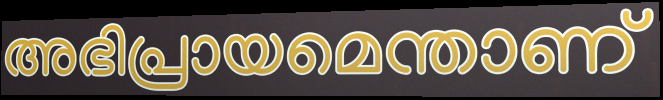
അഭിപ്രായമെന്താണ്